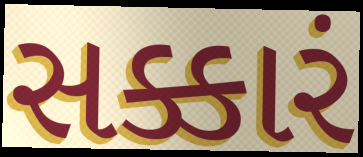
સક્કારં